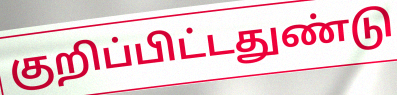
குறிப்பிட்டதுண்டு